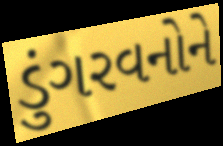
ડુંગરવનોને